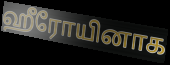
ஹீரோயினாக